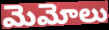
మెమోలు